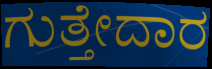
ಗುತ್ತೇದಾರ